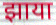
झाया